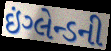
ઇંગ્લેન્ડની